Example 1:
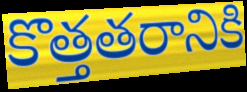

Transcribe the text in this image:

కొత్తతరానికి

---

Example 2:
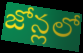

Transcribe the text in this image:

జోన్లలో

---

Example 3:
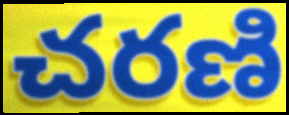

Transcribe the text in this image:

చరణి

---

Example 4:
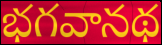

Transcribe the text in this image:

భగవానథ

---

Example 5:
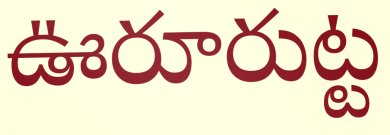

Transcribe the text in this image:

ఊరూరుట్ట